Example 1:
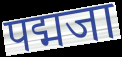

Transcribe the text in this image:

पद्मजा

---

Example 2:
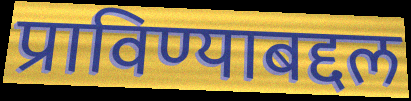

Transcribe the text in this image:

प्राविण्याबद्दल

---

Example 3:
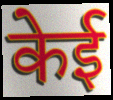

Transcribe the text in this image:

केई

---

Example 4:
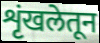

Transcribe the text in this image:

शृंखलेतून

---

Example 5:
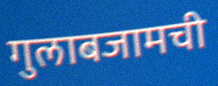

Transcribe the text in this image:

गुलाबजामची